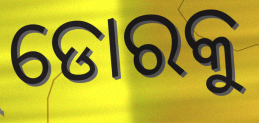
ଡୋରକୁ